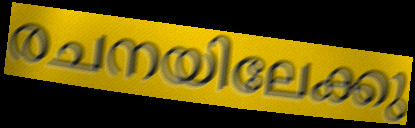
രചനയിലേക്കു